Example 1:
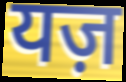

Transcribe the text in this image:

यज़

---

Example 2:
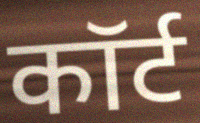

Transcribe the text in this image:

कॉर्ट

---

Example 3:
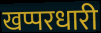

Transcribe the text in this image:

खप्परधारी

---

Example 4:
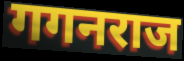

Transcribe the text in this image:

गगनराज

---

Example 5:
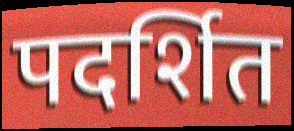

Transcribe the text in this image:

पदर्शित